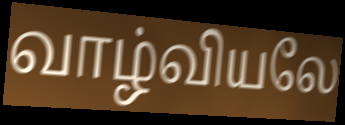
வாழ்வியலே